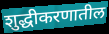
शुद्धीकरणातील